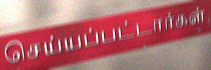
செய்யப்பட்டார்கள்